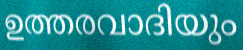
ഉത്തരവാദിയും